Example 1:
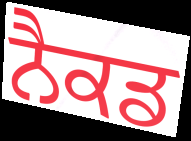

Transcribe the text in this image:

ਨੈਕਡ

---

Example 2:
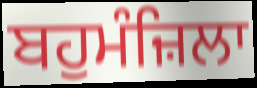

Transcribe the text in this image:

ਬਹੁਮੰਜ਼ਿਲਾ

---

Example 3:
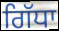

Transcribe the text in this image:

ਗਿੱਧਾ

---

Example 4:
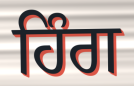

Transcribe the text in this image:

ਹਿੰਗ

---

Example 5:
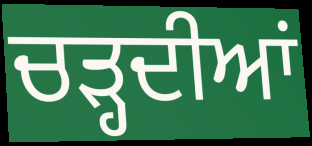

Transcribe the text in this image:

ਚੜ੍ਹਦੀਆਂ